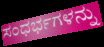
ಸಂಧರ್ಭಗಳನ್ನು